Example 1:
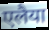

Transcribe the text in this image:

एलैया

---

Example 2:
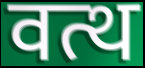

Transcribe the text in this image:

वत्थ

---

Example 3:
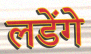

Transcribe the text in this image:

लडेंगे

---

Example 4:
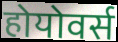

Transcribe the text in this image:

होयोवर्स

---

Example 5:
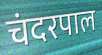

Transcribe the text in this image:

चंदरपाल